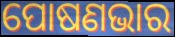
ପୋଷଣଭାର